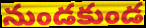
నుండకుండ